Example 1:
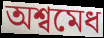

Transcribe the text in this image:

অশ্বমেধ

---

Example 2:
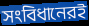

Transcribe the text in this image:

সংবিধানেরই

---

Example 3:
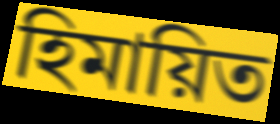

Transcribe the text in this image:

হিমায়িত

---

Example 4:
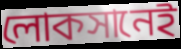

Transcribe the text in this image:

লোকসানেই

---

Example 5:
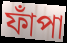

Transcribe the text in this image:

ফাঁপা